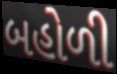
બહોળી